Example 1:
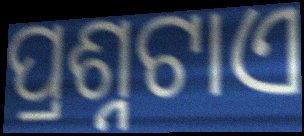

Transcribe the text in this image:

ପ୍ରଶ୍ନଟାଏ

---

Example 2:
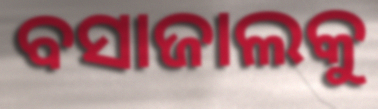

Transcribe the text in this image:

ବସାଜାଲକୁ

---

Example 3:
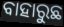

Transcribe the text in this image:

ବାହାରୁଛ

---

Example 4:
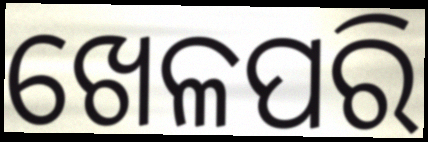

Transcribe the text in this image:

ଖେଳପରି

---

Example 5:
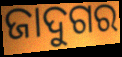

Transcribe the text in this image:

ଜାଦୁଗର